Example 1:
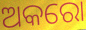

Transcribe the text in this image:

ଅକରୋ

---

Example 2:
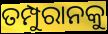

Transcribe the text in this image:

ତମ୍ପୁରାନକୁ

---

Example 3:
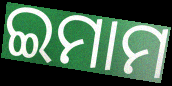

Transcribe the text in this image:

ଇମାମ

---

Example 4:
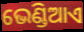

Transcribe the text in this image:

ଭେଣ୍ଡିଆଏ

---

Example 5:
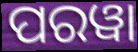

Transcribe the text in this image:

ପରୱା